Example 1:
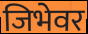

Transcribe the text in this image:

जिभेवर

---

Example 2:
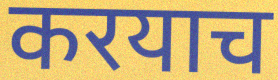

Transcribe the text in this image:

करयाच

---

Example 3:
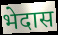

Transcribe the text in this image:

भेदास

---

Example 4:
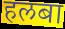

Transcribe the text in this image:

हलबा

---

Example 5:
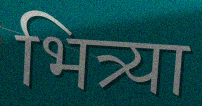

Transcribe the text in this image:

भित्र्या